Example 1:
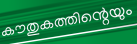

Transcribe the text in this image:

കൗതുകത്തിന്റെയും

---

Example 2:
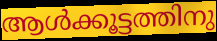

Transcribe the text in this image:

ആൾക്കൂട്ടത്തിനു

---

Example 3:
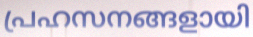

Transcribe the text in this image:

പ്രഹസനങ്ങളായി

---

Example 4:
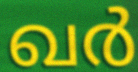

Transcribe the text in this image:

ഖർ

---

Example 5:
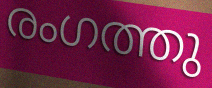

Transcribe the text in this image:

രംഗത്തു